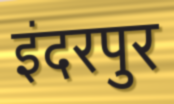
इंदरपुर